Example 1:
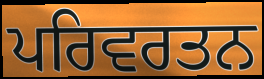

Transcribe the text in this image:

ਪਰਿਵਰਤਨ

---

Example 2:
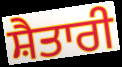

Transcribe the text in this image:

ਸ਼ੈਤਾਰੀ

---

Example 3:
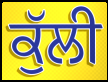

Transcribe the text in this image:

ਕੁੱਲੀ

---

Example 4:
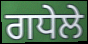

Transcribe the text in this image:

ਗਧੇਲੇ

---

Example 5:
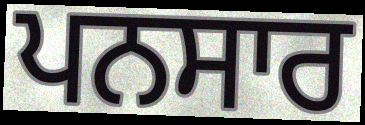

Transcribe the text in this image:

ਪਨਸਾਰ